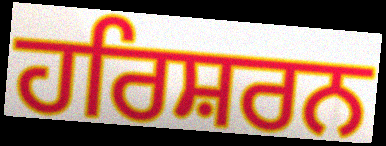
ਹਰਿਸ਼ਰਨ